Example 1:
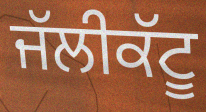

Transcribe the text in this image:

ਜੱਲੀਕੱਟੂ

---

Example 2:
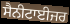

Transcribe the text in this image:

ਸੈਨੀਟਾਈਜਰ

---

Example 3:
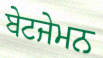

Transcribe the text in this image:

ਬੇਟਜੇਮਨ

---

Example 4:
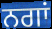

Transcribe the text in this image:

ਨਗਾਂ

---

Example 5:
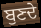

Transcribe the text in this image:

ਬੁਣਦੇ